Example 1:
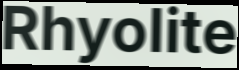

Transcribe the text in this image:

Rhyolite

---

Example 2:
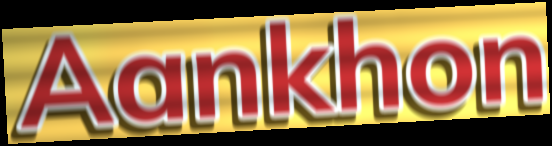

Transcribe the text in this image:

Aankhon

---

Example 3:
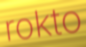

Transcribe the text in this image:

rokto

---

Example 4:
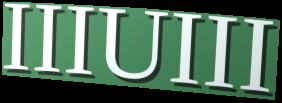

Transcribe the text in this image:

IIIUIII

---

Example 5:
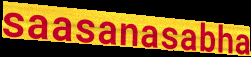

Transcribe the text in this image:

saasanasabha